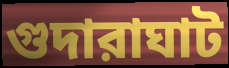
গুদারাঘাট